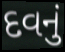
દવનું